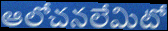
ఆలోచనలేమిటో